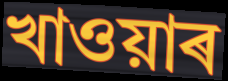
খাওয়াৰ